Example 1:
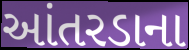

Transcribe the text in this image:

આંતરડાના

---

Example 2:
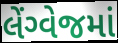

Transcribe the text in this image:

લેંગ્વેજમાં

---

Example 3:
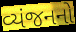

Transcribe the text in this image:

વ્યંજનનો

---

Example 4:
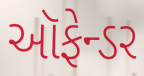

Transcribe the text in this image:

ઑફેન્ડર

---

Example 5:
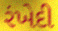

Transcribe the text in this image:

રંખેદી